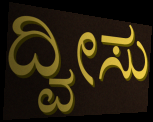
ದ್ವೀಸು